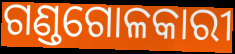
ଗଣ୍ଡଗୋଳକାରୀ